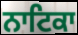
ਨਾਟਿਕਾ